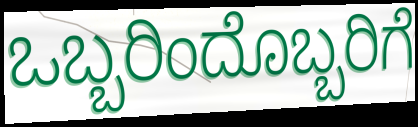
ಒಬ್ಬರಿಂದೊಬ್ಬರಿಗೆ